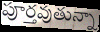
పూర్తవుతున్నా